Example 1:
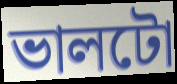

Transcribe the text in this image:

ভালটো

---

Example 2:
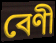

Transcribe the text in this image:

বেণী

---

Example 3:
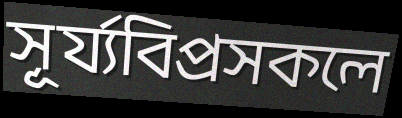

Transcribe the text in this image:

সূৰ্য্যবিপ্ৰসকলে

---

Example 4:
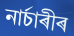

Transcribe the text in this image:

নাৰ্চাৰীৰ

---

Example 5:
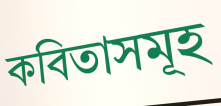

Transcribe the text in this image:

কবিতাসমূহ